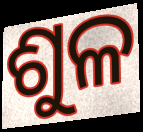
ଶୁଳ